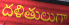
దళితులుగా